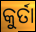
କୁର୍ତା